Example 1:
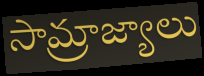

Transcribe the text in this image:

సామ్రాజ్యాలు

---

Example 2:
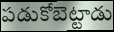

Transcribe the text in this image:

పడుకోబెట్టాడు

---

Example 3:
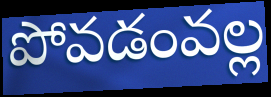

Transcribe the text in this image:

పోవడంవల్ల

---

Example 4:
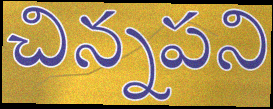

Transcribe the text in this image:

చిన్నపని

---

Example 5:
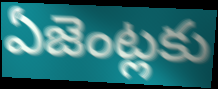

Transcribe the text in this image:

ఏజెంట్లకు